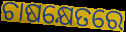
ଚାଷକ୍ଷେତରେ